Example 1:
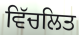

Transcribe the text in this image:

ਵਿੱਚਲਿਤ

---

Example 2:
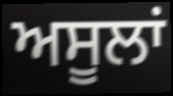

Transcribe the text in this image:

ਅਸੂਲਾਂ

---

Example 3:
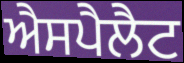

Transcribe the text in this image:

ਐਸਪੈਲੈਟ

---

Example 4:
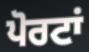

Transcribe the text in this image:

ਪੋਰਟਾਂ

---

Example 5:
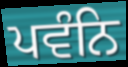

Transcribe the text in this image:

ਪਵੰਨਿ